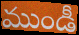
ముండీ